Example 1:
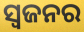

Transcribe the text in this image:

ସ୍ୱଜନର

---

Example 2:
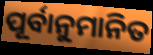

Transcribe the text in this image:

ପୂର୍ବାନୁମାନିତ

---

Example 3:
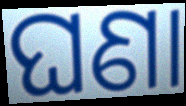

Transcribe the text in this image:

ଘଣା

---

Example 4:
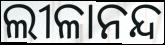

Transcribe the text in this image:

ଲୀଳାନନ୍ଦ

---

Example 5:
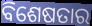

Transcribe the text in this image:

ବିଶେଷତାର